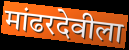
मांढरदेवीला